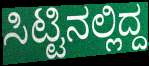
ಸಿಟ್ಟಿನಲ್ಲಿದ್ದ